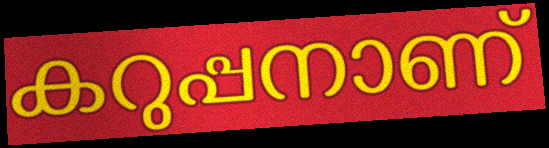
കറുപ്പനാണ്